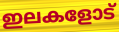
ഇലകളോട്